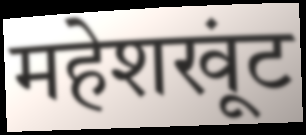
महेशखूंट